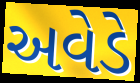
અવેડે